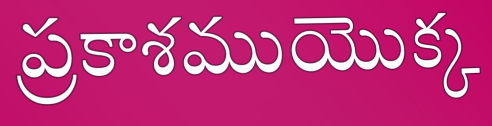
ప్రకాశముయొక్క